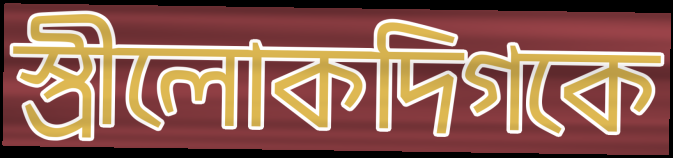
স্ত্রীলোকদিগকে